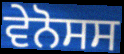
ਵੇਨੋਸਸ